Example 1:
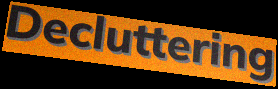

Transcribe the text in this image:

Decluttering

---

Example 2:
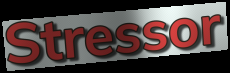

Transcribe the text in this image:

Stressor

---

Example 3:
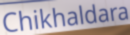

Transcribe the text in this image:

Chikhaldara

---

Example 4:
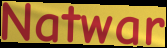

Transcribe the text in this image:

Natwar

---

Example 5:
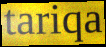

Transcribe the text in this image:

tariqa